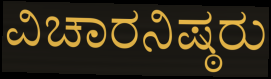
ವಿಚಾರನಿಷ್ಠರು